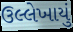
ઉલ્લેખાયું